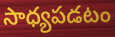
సాధ్యపడటం